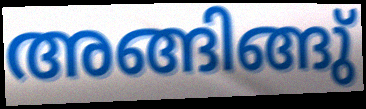
അങ്ങിങ്ങു്